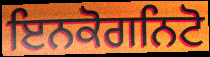
ਇਨਕੋਗਨਿਟੋ